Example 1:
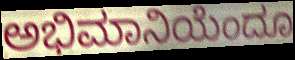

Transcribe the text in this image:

ಅಭಿಮಾನಿಯೆಂದೂ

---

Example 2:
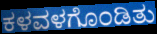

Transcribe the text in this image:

ಕಳವಳಗೊಂಡಿತು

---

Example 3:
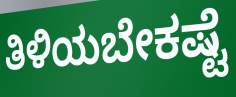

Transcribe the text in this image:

ತಿಳಿಯಬೇಕಷ್ಟೆ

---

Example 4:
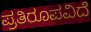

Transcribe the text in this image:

ಪ್ರತಿರೂಪವಿದೆ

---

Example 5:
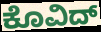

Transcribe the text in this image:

ಕೊವಿದ್